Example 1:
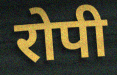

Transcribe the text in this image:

रोपी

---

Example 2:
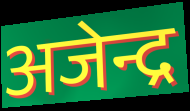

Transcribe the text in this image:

अजेन्द्र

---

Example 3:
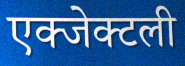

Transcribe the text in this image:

एक्जेक्टली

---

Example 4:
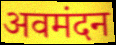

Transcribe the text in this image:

अवमंदन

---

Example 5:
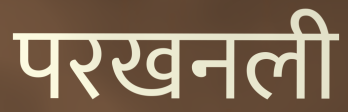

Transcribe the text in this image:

परखनली